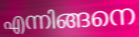
എന്നിങ്ങനെ